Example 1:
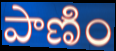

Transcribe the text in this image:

పాణిం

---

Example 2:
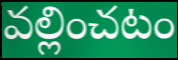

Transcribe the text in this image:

వల్లించటం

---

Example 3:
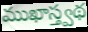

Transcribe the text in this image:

ముఖాస్త్వథ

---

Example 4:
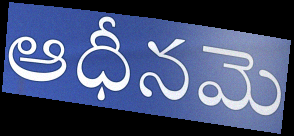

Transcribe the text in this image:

ఆధీనమె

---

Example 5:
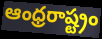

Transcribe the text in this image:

ఆంధ్రరాష్ట్రం